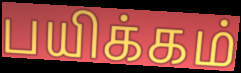
பயிக்கம்